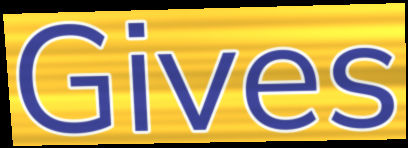
Gives